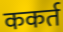
ककर्त